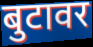
बुटावर